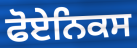
ਫੋਏਨਿਕਸ